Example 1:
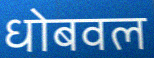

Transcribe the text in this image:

धोबवल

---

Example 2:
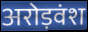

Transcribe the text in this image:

अरोड़वंश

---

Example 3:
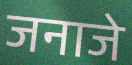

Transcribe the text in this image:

जनाजे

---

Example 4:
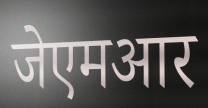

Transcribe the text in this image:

जेएमआर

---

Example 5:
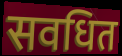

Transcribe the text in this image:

सवधित